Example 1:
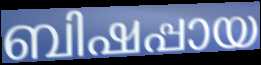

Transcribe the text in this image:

ബിഷപ്പായ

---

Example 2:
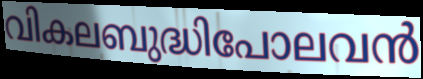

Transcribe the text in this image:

വികലബുദ്ധിപോലവൻ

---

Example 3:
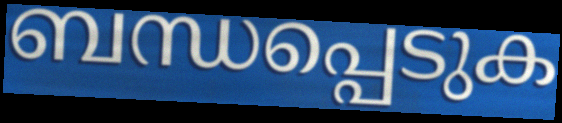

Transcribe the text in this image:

ബന്ധപ്പെടുക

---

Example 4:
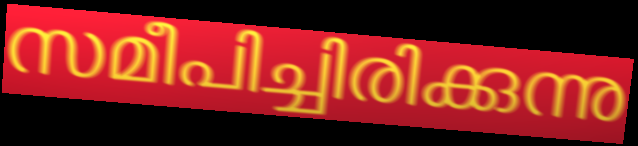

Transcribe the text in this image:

സമീപിച്ചിരിക്കുന്നു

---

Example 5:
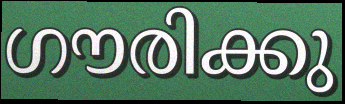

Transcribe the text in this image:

ഗൗരിക്കു